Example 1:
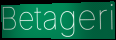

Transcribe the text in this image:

Betageri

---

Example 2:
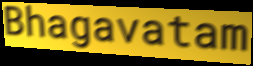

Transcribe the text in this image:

Bhagavatam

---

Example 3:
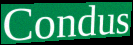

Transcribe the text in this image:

Condus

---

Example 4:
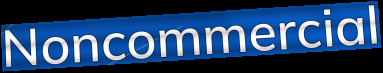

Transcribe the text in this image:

Noncommercial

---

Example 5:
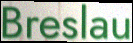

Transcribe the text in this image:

Breslau